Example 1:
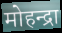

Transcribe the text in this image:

मोहन्द्रा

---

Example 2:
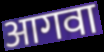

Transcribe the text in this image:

आगवा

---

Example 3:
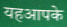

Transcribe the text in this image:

यहआपके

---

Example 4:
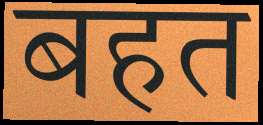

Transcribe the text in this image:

बहत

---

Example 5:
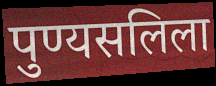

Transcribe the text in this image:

पुण्यसलिला